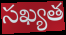
సఖ్యత